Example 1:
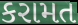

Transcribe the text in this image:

કરામત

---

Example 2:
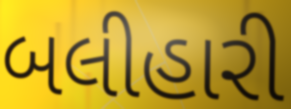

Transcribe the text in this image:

બલીહારી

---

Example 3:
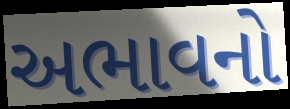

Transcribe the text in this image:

અભાવનો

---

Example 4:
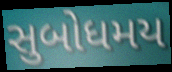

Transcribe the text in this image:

સુબોધમય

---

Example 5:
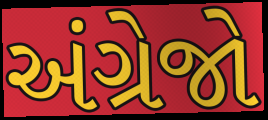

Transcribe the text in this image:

અંગ્રેજો